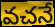
వచనే